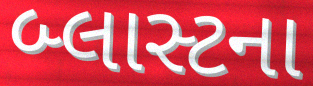
બ્લાસ્ટના